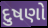
દુષણો